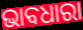
ଭାବଧାରା